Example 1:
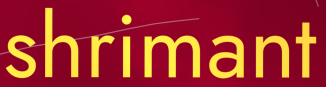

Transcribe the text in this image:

shrimant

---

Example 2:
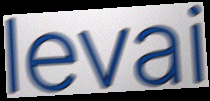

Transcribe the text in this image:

levai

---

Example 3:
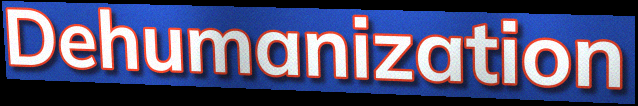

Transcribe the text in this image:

Dehumanization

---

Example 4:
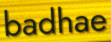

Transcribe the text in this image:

badhae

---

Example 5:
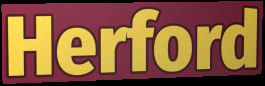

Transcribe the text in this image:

Herford